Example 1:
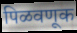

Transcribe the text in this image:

पिळवणूक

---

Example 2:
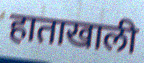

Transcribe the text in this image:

हाताखाली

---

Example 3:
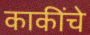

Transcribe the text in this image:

काकींचे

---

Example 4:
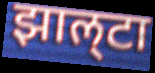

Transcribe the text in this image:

झाल्टा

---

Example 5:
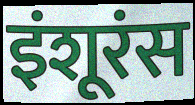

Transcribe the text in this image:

इंशूरंस